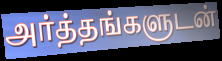
அர்த்தங்களுடன்